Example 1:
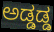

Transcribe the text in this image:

ಅಡ್ಡಡ್ಡ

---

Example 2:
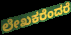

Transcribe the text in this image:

ಲೇಖಕರೆಂದರೆ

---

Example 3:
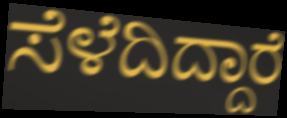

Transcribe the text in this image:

ಸೆಳೆದಿದ್ದಾರೆ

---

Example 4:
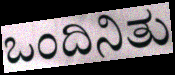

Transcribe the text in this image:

ಒಂದಿನಿತು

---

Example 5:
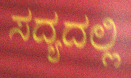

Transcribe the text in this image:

ಸದ್ಯದಲ್ಲಿ